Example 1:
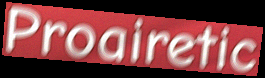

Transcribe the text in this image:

Proairetic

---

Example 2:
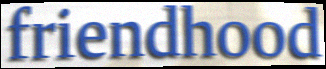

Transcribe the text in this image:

friendhood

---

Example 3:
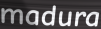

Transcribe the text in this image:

madura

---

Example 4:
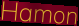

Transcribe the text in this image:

Hamon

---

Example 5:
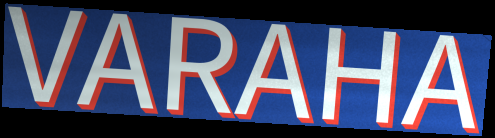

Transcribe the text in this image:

VARAHA